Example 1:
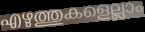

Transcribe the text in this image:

എഴുത്തുകളെല്ലാം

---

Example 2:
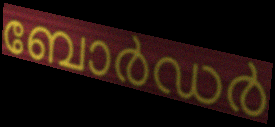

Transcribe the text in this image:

ബോർഡർ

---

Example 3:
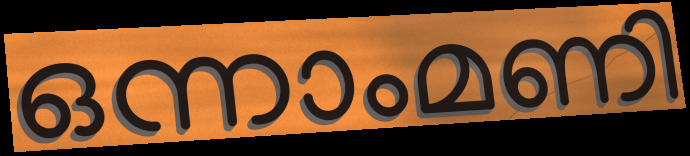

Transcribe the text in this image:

ഒന്നാംമണി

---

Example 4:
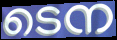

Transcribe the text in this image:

ടെന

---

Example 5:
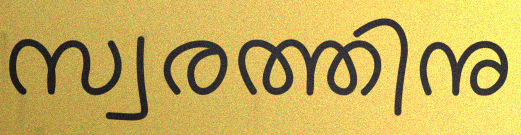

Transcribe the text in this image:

സ്വരത്തിനു